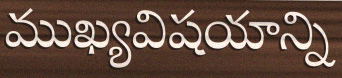
ముఖ్యవిషయాన్ని